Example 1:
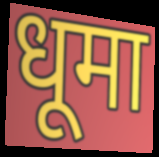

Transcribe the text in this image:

धूमा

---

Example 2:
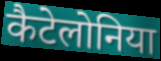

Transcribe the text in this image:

कैटेलोनिया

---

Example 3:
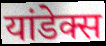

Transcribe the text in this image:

यांडेक्स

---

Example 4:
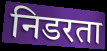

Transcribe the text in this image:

निडरता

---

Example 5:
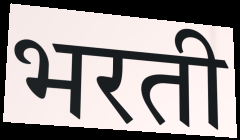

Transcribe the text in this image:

भरती